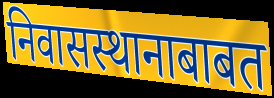
निवासस्थानाबाबत